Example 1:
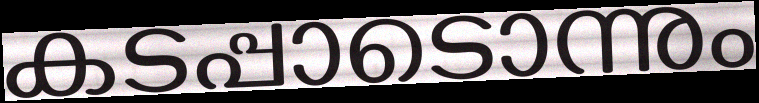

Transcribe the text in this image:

കടപ്പാടൊന്നും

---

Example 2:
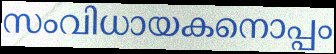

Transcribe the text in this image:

സംവിധായകനൊപ്പം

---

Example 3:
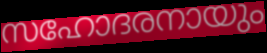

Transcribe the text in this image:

സഹോദരനായും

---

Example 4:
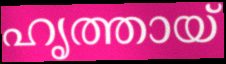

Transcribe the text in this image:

ഹൃത്തായ്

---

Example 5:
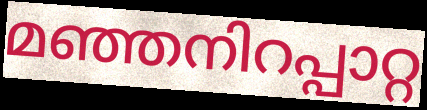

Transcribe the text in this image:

മഞ്ഞനിറപ്പാറ്റ